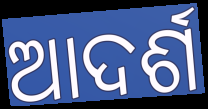
ଆଦର୍ଶ